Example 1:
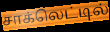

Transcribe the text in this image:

சாக்லெட்டில்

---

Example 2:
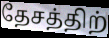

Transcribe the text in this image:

தேசத்திற்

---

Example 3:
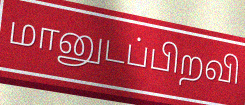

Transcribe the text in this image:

மானுடப்பிறவி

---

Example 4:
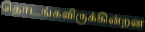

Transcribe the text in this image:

தொடங்கவிருக்கின்றன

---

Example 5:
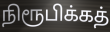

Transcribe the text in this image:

நிரூபிக்கத்